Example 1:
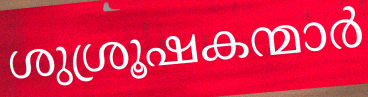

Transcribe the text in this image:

ശുശ്രൂഷകന്മാർ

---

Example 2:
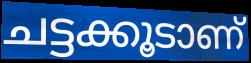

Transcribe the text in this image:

ചട്ടക്കൂടാണ്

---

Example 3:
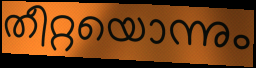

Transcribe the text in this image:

തീറ്റയൊന്നും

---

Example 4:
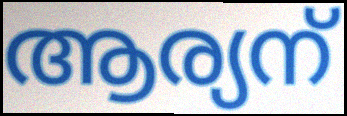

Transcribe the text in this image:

ആര്യന്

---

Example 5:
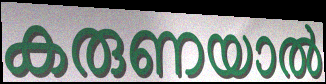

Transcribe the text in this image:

കരുണയാൽ